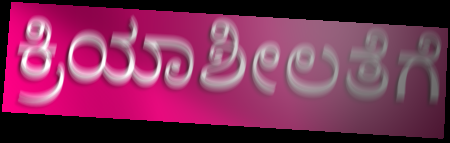
ಕ್ರಿಯಾಶೀಲತೆಗೆ